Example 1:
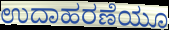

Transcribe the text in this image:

ಉದಾಹರಣೆಯೂ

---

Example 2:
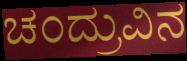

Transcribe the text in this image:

ಚಂದ್ರುವಿನ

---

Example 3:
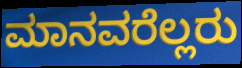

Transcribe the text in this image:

ಮಾನವರೆಲ್ಲರು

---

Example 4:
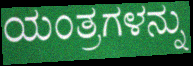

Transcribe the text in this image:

ಯಂತ್ರಗಳನ್ನು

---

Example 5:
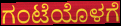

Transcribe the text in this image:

ಗಂಟೆಯೊಳಗೆ